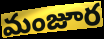
మంజూర